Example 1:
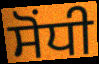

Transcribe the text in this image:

ਸੋਂਧੀ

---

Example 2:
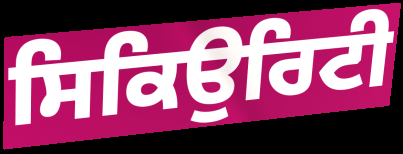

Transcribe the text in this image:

ਸਿਕਿਉਰਿਟੀ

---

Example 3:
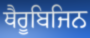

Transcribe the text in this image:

ਥੈਰੂਬਿਜਿਨ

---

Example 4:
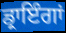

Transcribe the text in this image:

ਡ੍ਰਾਇੰਗਾਂ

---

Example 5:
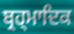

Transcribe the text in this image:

ਬ੍ਰਹ੍ਮਾਦਿਕ